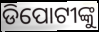
ଡିପୋଟୀଙ୍କୁ